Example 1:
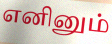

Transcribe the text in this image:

எனினும்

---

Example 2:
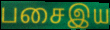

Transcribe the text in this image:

பசைஇய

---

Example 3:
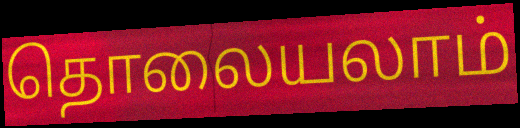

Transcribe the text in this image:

தொலையலாம்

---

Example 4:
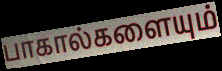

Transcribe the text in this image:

பாகால்களையும்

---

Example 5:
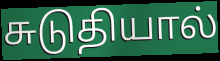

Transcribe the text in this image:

சுடுதியால்